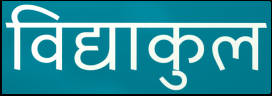
विद्याकुल